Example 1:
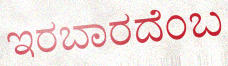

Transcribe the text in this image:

ಇರಬಾರದೆಂಬ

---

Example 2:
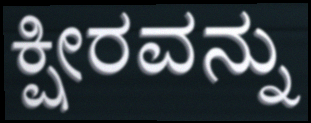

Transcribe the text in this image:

ಕ್ಷೀರವನ್ನು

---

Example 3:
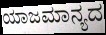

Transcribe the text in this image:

ಯಾಜಮಾನ್ಯದ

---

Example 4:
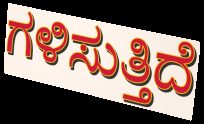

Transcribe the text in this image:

ಗಳಿಸುತ್ತಿದೆ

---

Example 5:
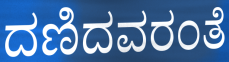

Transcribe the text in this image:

ದಣಿದವರಂತೆ